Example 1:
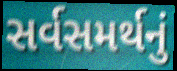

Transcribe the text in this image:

સર્વસમર્થનું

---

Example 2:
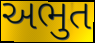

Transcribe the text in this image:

અભુત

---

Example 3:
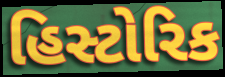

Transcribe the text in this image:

હિસ્ટોરિક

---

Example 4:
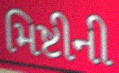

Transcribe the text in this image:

મિષ્ટીની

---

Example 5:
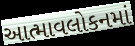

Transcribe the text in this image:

આત્માવલોકનમાં